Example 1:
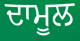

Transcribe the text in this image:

ਦਾਮੂਲ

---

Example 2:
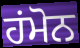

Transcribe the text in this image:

ਹਂਮੋਨ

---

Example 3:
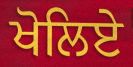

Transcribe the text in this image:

ਖੋਲਿਏ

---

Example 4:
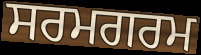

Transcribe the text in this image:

ਸਰਮਗਰਮ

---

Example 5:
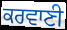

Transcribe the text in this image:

ਕਰਵਾਣੀ